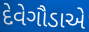
દેવેગૌડાએ